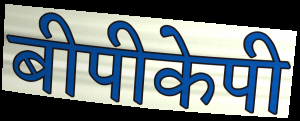
बीपीकेपी